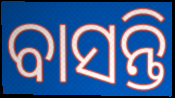
ବାସନ୍ତି